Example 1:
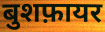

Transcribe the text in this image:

बुशफ़ायर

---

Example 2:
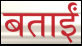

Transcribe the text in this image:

बताईं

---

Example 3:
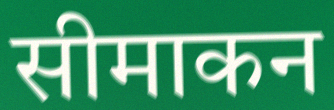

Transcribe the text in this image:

सीमाकन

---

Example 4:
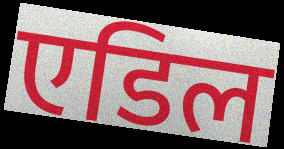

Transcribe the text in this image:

एडिल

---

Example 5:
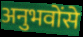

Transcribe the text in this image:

अनुभवोंसे